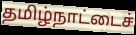
தமிழ்நாட்டைச்